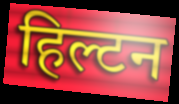
हिल्टन